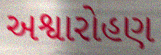
અશ્વારોહણ